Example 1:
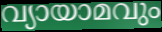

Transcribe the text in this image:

വ്യായാമവും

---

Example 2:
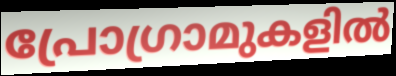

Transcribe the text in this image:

പ്രോഗ്രാമുകളിൽ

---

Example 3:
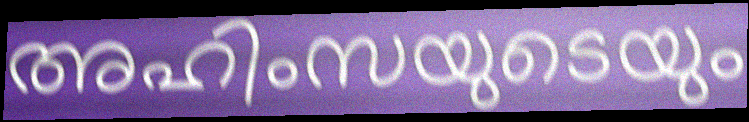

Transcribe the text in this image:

അഹിംസയുടെയും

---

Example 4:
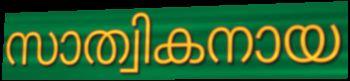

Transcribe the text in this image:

സാത്വികനായ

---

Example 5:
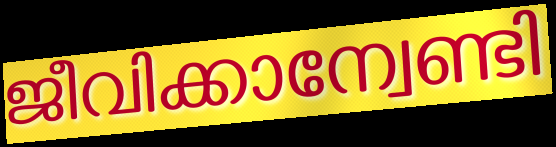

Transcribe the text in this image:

ജീവിക്കാന്വേണ്ടി